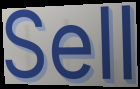
Sell